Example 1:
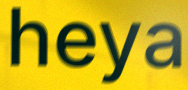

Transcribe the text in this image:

heya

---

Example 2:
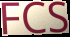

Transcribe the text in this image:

FCS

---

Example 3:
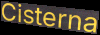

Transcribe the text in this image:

Cisterna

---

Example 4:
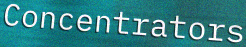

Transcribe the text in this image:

Concentrators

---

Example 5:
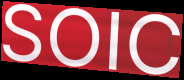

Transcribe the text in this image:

SOIC